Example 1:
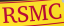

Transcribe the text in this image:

RSMC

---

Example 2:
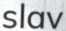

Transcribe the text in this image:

slav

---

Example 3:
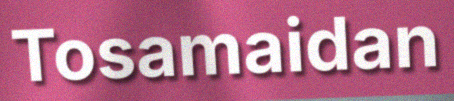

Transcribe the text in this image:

Tosamaidan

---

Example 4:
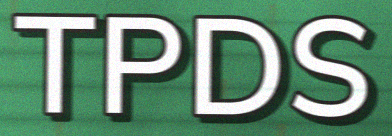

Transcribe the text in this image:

TPDS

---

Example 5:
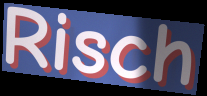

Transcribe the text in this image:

Risch